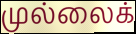
முல்லைக்